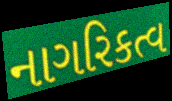
નાગરિકત્વ